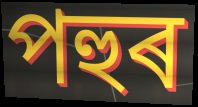
পহুৰ